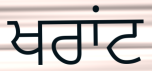
ਖਰਾਂਟ